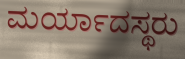
ಮರ್ಯಾದಸ್ಥರು